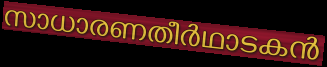
സാധാരണതീർഥാടകൻ